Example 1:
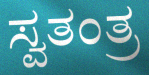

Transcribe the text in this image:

ಸ್ವತಂತ್ರ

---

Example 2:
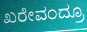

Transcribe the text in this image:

ಖರೇವಂದ್ರೂ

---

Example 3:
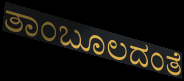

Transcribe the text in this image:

ತಾಂಬೂಲದಂತೆ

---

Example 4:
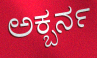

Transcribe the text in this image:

ಅಕ್ಬರ್ನ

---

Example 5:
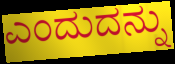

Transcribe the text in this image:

ಎಂದುದನ್ನು